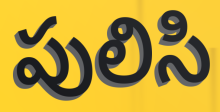
పులిసి